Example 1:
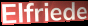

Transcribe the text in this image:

Elfriede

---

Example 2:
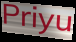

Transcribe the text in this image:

Priyu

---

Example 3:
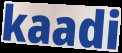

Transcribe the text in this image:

kaadi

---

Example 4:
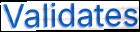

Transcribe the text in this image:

Validates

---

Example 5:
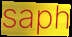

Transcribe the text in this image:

saph